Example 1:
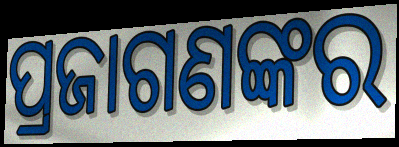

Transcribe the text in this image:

ପ୍ରଜାଗଣଙ୍କର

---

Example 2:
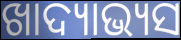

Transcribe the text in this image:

ଖାଦ୍ୟାଭ୍ୟସ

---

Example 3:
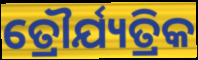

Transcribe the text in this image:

ତ୍ରୌର୍ଯ୍ୟତ୍ରିକ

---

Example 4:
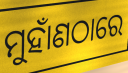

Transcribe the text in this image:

ମୁହାଁଣଠାରେ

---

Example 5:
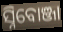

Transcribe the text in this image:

ସ୍ନିବୋଞ୍ଜା